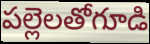
పల్లెలతోగూడి